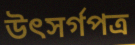
উৎসর্গপত্র